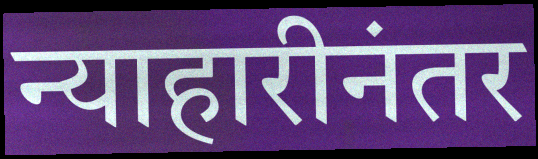
न्याहारीनंतर